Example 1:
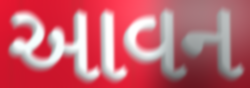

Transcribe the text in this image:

આવન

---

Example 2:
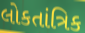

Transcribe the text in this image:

લોકતાંત્રિક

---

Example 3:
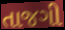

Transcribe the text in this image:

તાજગી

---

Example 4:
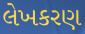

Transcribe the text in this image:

લેખકરણ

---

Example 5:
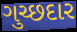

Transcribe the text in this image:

ગુચ્છદાર